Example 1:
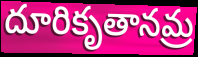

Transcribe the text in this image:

దూరికృతానమ్ర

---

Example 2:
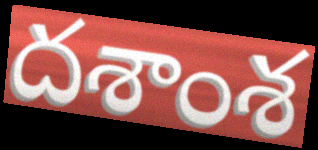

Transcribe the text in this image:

దశాంశ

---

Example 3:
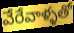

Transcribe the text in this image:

వేరేవాళ్ళతో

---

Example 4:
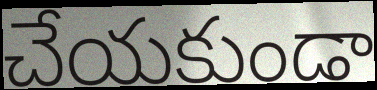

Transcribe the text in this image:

చేయకుండా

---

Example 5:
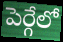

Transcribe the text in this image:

పెర్గేలో